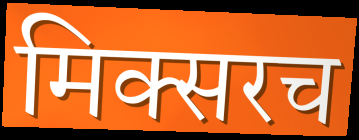
मिक्सरच